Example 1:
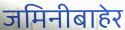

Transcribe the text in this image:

जमिनीबाहेर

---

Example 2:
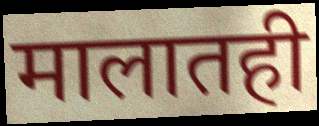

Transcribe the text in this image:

मालातही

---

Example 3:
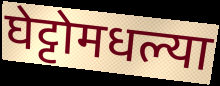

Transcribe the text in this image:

घेट्टोमधल्या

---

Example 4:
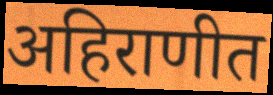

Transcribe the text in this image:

अहिराणीत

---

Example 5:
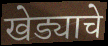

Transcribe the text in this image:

खेड्याचे